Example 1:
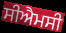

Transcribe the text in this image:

ਸੀਐਮਸੀ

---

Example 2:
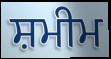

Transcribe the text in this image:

ਸ਼ਮੀਮ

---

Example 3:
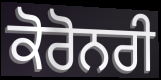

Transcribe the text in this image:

ਕੋਰੋਨਰੀ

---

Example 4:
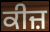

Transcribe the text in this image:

ਕੀਜ਼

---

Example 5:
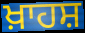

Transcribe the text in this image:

ਖ਼ਾਹਸ਼